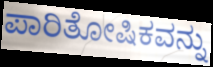
ಪಾರಿತೋಷಿಕವನ್ನು